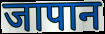
जापान